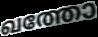
ഖത്തോ